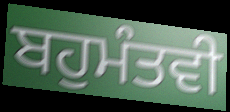
ਬਹੁਮੰਤਵੀ